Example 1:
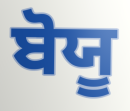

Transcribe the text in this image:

ਬੋਯੂ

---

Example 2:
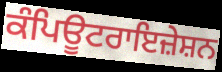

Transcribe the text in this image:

ਕੰਪਿਊਟਰਾਇਜ਼ੇਸ਼ਨ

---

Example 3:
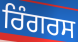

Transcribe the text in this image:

ਰਿੰਗਰਸ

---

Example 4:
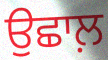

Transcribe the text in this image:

ਉਛਾਲ਼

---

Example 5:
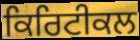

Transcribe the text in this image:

ਕਿਰਿਟੀਕਲ